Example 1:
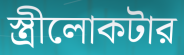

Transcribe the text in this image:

স্ত্রীলোকটার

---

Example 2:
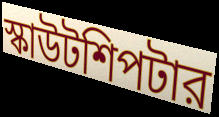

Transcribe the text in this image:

স্কাউটশিপটার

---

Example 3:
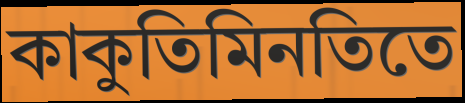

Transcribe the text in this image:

কাকুতিমিনতিতে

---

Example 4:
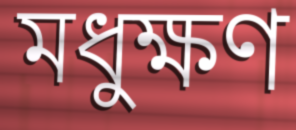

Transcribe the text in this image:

মধুক্ষণ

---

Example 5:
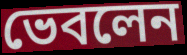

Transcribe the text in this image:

ভেবলেন